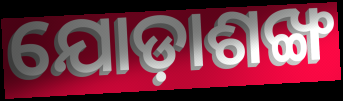
ଯୋଡ଼ାଶଙ୍ଖ